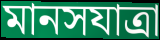
মানসযাত্রা